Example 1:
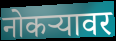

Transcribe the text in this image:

नोकऱ्यावर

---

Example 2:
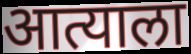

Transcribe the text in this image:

आत्याला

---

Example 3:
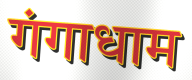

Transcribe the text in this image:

गंगाधाम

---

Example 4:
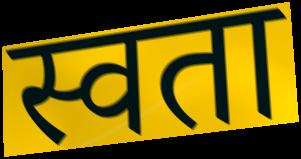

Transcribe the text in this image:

स्वता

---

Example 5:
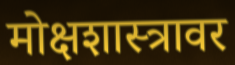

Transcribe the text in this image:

मोक्षशास्त्रावर